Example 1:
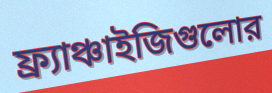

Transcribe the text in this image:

ফ্র্যাঞ্চাইজিগুলোর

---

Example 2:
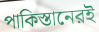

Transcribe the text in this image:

পাকিস্তানেরই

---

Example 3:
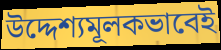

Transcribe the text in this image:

উদ্দেশ্যমূলকভাবেই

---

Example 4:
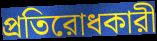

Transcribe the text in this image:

প্রতিরোধকারী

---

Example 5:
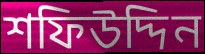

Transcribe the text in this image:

শফিউদ্দিন